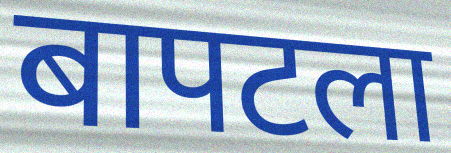
बापटला